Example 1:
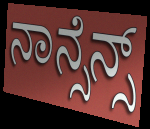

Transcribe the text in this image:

ನಾನ್ಸೆನ್ಸ್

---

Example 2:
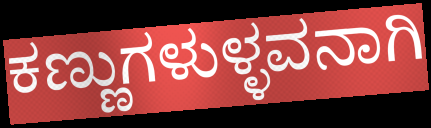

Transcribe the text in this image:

ಕಣ್ಣುಗಳುಳ್ಳವನಾಗಿ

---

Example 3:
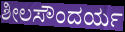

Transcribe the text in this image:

ಶೀಲಸೌಂದರ್ಯ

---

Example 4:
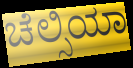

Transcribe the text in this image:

ಚೆಲ್ಸಿಯಾ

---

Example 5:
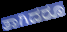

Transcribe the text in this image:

ತಾಗಿದರೂ